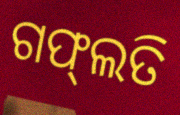
ଗଫ୍‌ଲତି